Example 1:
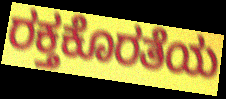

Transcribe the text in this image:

ರಕ್ತಕೊರತೆಯ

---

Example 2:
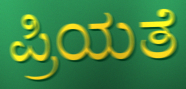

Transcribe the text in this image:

ಪ್ರಿಯತೆ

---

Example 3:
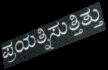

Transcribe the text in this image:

ಪ್ರಯತ್ನಿಸುತ್ತಿತ್ತು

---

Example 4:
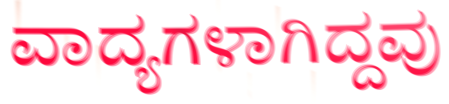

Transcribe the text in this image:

ವಾದ್ಯಗಳಾಗಿದ್ದವು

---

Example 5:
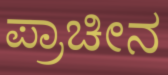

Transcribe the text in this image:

ಪ್ರಾಚೀನ